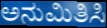
ಅನುಮಿತಿಸಿ